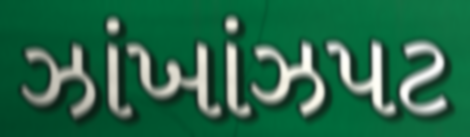
ઝાંખાંઝપટ